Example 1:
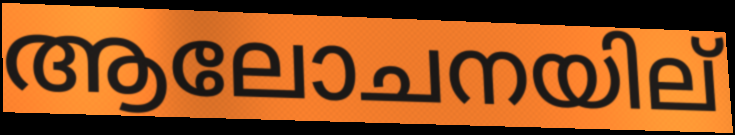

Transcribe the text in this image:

ആലോചനയില്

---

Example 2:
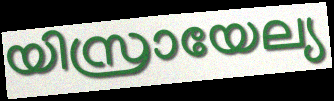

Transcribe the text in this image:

യിസ്രായേല്യ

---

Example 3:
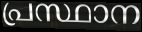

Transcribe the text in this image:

പ്രസ്ഥാന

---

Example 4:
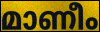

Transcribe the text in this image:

മാണീം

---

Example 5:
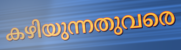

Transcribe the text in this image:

കഴിയുന്നതുവരെ